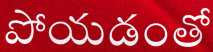
పోయడంతో